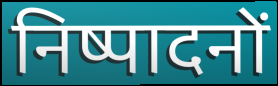
निष्पादनों